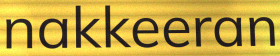
nakkeeran